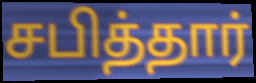
சபித்தார்